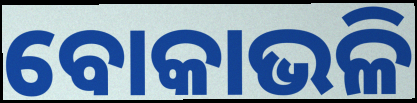
ବୋକାଭଳି